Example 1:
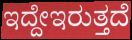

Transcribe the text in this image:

ಇದ್ದೇಇರುತ್ತದೆ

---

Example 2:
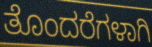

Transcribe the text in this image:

ತೊಂದರೆಗಳಾಗಿ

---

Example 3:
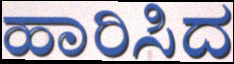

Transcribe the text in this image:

ಹಾರಿಸಿದ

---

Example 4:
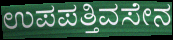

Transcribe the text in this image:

ಉಪಪತ್ತಿವಸೇನ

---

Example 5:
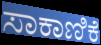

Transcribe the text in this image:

ಸಾಕಾಣಿಕೆ